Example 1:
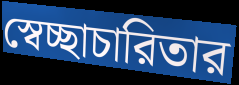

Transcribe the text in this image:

স্বেচ্ছাচারিতার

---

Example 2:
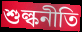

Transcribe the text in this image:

শুল্কনীতি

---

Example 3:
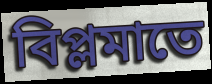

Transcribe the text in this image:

বিপ্লমাতে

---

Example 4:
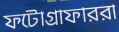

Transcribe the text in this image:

ফটোগ্রাফাররা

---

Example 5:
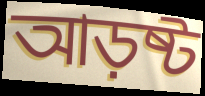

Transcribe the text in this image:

আড়ষ্ট